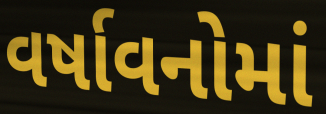
વર્ષાવનોમાં